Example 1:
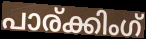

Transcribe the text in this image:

പാര്ക്കിംഗ്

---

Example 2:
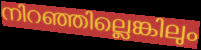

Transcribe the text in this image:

നിറഞ്ഞില്ലെങ്കിലും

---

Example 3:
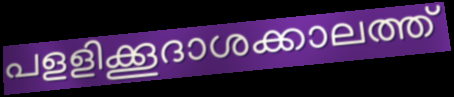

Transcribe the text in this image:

പളളിക്കൂദാശക്കാലത്ത്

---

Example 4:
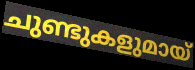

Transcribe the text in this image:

ചുണ്ടുകളുമായ്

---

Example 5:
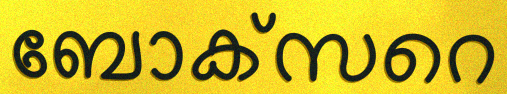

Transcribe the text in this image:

ബോക്‌സറെ